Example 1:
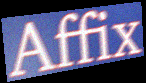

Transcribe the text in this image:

Affix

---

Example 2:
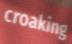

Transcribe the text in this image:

croaking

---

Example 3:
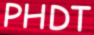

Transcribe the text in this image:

PHDT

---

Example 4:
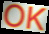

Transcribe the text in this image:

OK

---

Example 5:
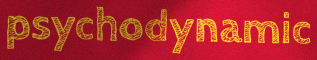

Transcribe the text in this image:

psychodynamic